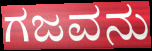
ಗಜವನು